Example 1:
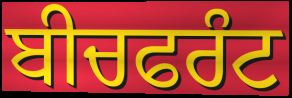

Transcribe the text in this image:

ਬੀਚਫਰੰਟ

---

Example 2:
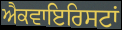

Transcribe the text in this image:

ਐਕਵਾਇਰਿਸਟਾਂ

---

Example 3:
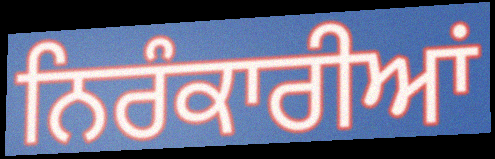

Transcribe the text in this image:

ਨਿਰੰਕਾਰੀਆਂ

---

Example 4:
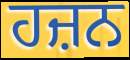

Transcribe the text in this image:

ਹਜ਼ਨ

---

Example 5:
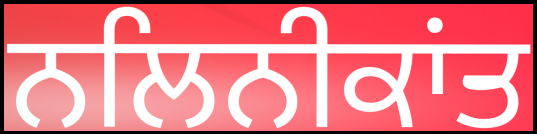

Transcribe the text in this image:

ਨਲਿਨੀਕਾਂਤ